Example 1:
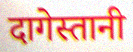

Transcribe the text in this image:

दागेस्तानी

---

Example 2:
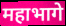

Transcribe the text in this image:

महाभागे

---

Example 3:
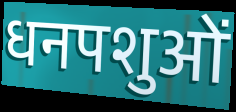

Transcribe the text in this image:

धनपशुओं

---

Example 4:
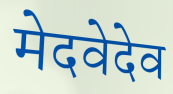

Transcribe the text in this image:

मेदवेदेव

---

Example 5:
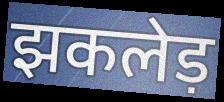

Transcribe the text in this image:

झकलेड़